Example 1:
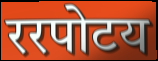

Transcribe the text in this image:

ररपोटय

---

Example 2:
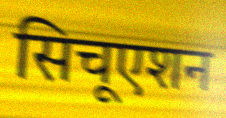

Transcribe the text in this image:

सिचूएशन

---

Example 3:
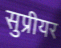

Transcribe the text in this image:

सुप्रीयर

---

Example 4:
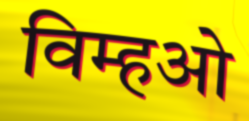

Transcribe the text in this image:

विम्हओ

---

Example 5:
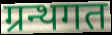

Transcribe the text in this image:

ग्रन्थगत